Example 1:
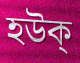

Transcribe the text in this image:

হউক্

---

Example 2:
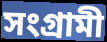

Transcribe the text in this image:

সংগ্রামী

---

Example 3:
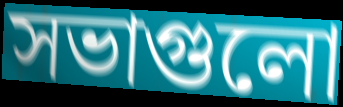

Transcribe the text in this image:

সভাগুলো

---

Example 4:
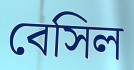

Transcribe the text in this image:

বেসিল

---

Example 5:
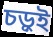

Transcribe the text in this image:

চড়ুই